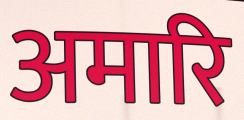
अमारि